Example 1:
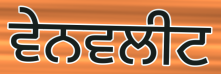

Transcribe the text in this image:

ਵੇਨਵਲੀਟ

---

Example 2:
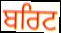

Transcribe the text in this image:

ਬਰਿਟ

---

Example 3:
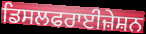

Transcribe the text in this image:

ਡਿਸਲਫਰਾਈਜ਼ੇਸ਼ਨ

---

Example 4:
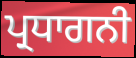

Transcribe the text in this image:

ਪ੍ਰਧਾਗਨੀ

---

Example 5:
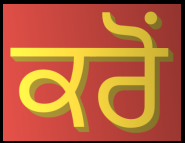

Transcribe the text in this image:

ਕਰੋਂ